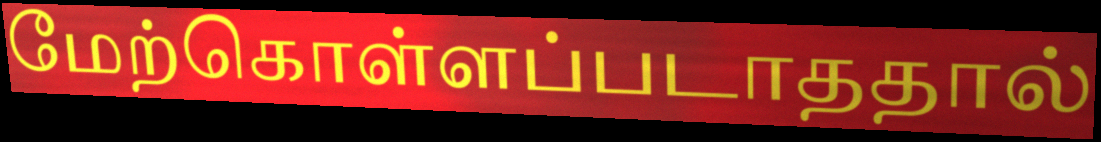
மேற்கொள்ளப்படாததால்